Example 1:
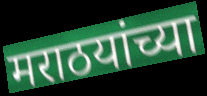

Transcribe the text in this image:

मराठयांच्या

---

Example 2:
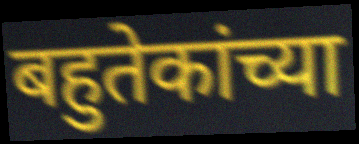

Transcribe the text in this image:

बहुतेकांच्या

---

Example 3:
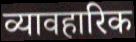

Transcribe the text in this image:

व्यावहारिक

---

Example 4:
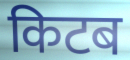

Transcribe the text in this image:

किटब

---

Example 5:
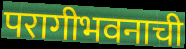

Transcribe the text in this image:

परागीभवनाची